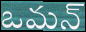
ఒమన్